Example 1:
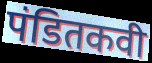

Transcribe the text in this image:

पंडितकवी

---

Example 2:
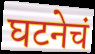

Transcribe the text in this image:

घटनेचं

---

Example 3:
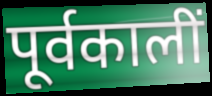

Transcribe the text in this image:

पूर्वकालीं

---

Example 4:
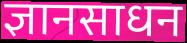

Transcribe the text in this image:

ज्ञानसाधन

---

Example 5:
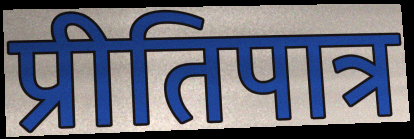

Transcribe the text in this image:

प्रीतिपात्र